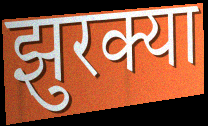
झुरक्या